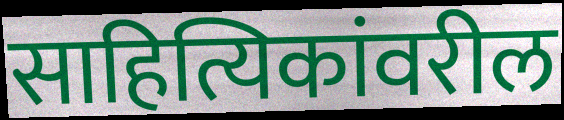
साहित्यिकांवरील